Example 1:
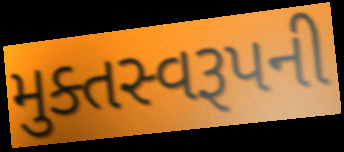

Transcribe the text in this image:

મુક્તસ્વરૂપની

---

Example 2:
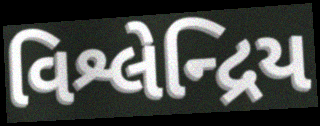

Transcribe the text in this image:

વિશ્લેન્દ્રિય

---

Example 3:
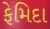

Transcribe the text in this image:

ફેમિદા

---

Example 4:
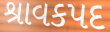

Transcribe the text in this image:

શ્રાવકપદ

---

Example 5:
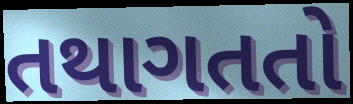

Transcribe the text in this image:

તથાગતતો